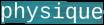
physique